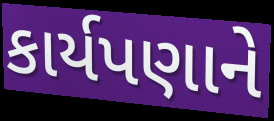
કાર્યપણાને